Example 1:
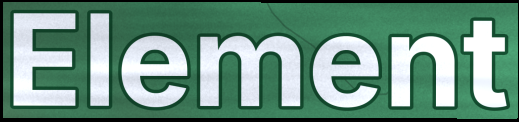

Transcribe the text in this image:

Element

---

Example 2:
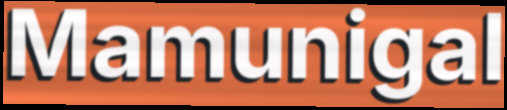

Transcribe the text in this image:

Mamunigal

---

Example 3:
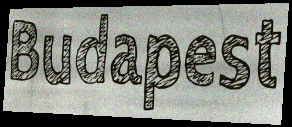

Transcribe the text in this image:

Budapest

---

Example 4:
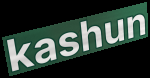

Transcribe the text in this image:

kashun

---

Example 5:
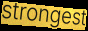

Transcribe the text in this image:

strongest